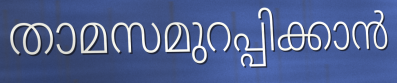
താമസമുറപ്പിക്കാൻ